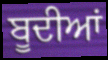
ਬੂਦੀਆਂ